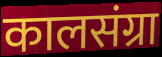
कालसंग्रा